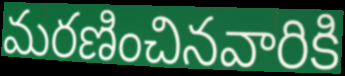
మరణించినవారికి